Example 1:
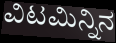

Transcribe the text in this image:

ವಿಟಮಿನ್ನಿನ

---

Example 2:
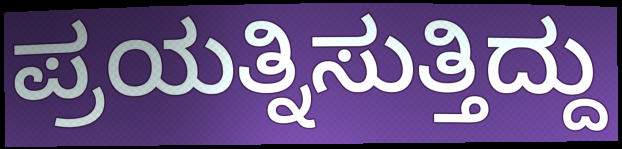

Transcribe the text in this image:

ಪ್ರಯತ್ನಿಸುತ್ತಿದ್ದು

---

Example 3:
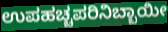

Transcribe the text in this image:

ಉಪಹಚ್ಚಪರಿನಿಬ್ಬಾಯೀ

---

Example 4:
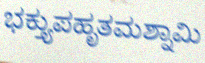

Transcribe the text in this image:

ಭಕ್ತ್ಯುಪಹೃತಮಶ್ನಾಮಿ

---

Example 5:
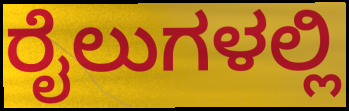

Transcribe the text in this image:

ರೈಲುಗಳಲ್ಲಿ